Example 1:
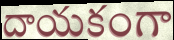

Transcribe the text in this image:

దాయకంగా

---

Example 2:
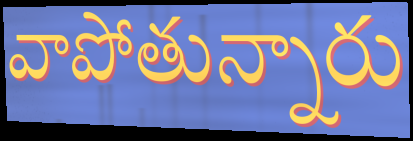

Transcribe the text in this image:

వాపోతున్నారు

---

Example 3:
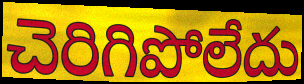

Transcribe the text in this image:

చెరిగిపోలేదు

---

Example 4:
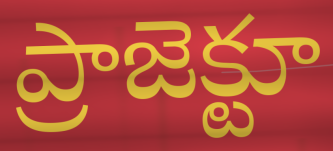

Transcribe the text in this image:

ప్రాజెక్టూ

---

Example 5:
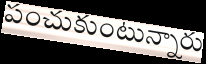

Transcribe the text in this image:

పంచుకుంటున్నారు